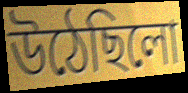
উঠেছিলো